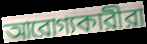
আরোগ্যকারীরা